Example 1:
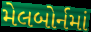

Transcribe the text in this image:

મેલબોર્નમાં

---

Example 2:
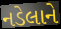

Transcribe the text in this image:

નડેલાને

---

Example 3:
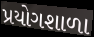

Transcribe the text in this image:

પ્રયોગશાળા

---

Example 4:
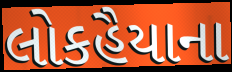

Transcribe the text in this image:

લોકહૈયાના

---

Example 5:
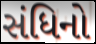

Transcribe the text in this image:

સંધિનો